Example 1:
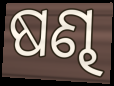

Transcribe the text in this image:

ଷଣ୍ଢ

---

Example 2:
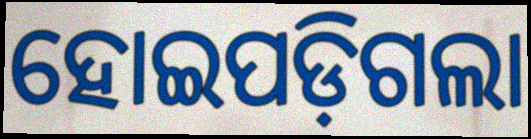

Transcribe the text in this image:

ହୋଇପଡ଼ିଗଲା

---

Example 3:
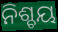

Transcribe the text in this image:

ନିଶ୍ଚୟ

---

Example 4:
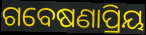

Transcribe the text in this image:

ଗବେଷଣାପ୍ରିୟ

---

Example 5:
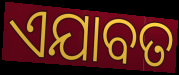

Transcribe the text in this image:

ଏଯାବତ